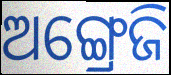
ଅଙ୍ଗ୍ରେଜି